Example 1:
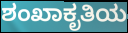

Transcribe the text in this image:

ಶಂಖಾಕೃತಿಯ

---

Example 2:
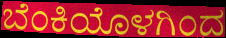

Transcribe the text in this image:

ಬೆಂಕಿಯೊಳಗಿಂದ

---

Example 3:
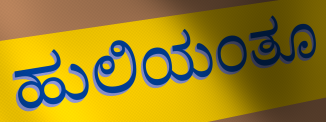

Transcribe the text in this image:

ಹುಲಿಯಂತೂ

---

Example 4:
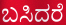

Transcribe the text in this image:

ಬಸಿದರೆ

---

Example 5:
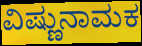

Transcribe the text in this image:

ವಿಷ್ಣುನಾಮಕ